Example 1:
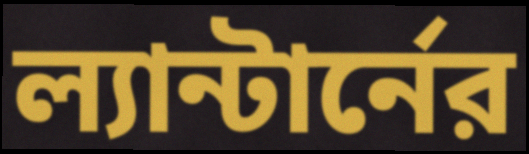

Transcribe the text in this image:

ল্যান্টার্নের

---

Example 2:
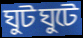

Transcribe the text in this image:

ঘুটঘুটে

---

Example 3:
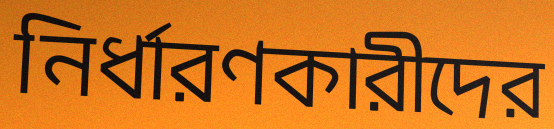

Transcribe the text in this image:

নির্ধারণকারীদের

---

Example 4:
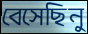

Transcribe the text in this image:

বেসেছিনু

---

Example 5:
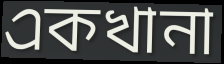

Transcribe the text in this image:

একখানা